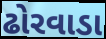
ઢોરવાડા